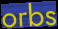
orbs